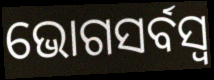
ଭୋଗସର୍ବସ୍ୱ